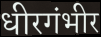
धीरगंभीर